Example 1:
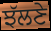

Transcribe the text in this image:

ਝੱਲਣੇ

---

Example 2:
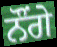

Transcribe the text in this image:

ਨੌਂਗੇ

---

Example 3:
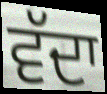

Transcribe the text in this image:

ਵੱਦਾ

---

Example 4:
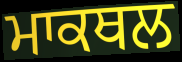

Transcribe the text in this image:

ਮਾਕਥਲ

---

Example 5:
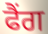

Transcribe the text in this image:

ਫੈਂਗ